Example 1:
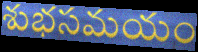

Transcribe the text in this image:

శుభసమయం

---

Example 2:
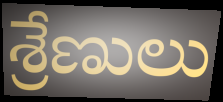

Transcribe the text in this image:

శ్రేణులు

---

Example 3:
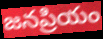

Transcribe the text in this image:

జనప్రియం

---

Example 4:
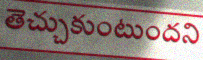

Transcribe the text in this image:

తెచ్చుకుంటుందని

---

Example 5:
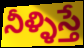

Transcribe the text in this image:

నీళ్ళిస్తే